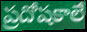
ప్రదోషకాలే